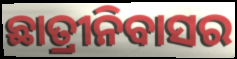
ଛାତ୍ରୀନିବାସର